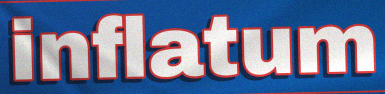
inflatum